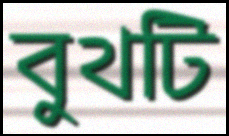
বুথটি